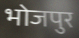
भोजपुर